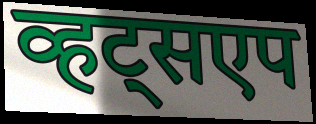
व्हट्सएप